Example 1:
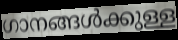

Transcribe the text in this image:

ഗാനങ്ങൾക്കുള്ള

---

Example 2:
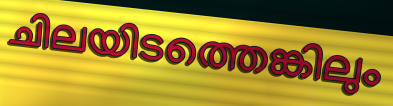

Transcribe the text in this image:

ചിലയിടത്തെങ്കിലും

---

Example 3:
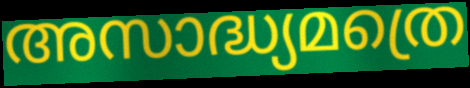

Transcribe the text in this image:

അസാദ്ധ്യമത്രെ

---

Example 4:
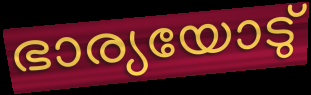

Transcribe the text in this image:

ഭാര്യയോടു്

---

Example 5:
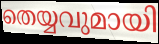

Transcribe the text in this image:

തെയ്യവുമായി